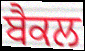
ਬੈਕਲ